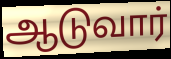
ஆடுவார்